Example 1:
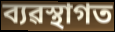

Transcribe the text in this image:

ব্যৱস্থাগত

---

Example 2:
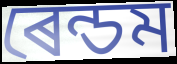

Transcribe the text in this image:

ৰেন্ডম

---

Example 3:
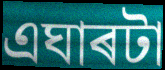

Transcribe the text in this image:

এঘাৰটা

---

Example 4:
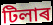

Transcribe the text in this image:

টিলাৰ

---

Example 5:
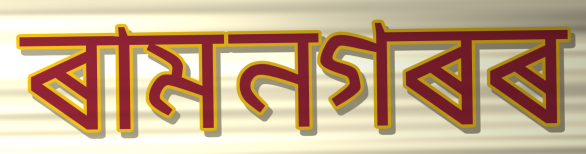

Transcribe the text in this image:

ৰামনগৰৰ